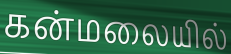
கன்மலையில்